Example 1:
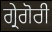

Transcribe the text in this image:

ਗ੍ਰੇਗੋਰੀ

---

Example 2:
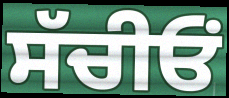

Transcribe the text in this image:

ਸੱਚੀਓਂ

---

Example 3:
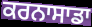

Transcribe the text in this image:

ਕਰਨਾਸਾਡਾ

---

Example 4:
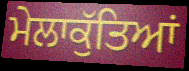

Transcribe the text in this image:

ਮੇਲਾਕੁੱਤਿਆਂ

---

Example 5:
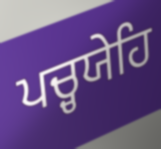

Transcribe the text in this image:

ਪਚ੍ਚਯੇਹਿ